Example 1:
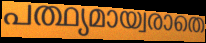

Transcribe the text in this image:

പത്ഥ്യമായ്വരാതെ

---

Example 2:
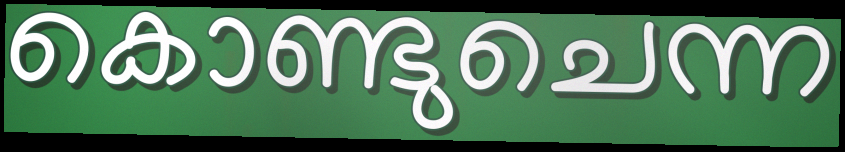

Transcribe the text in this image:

കൊണ്ടുചെന്ന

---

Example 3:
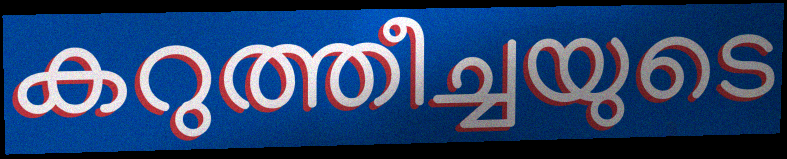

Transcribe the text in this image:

കറുത്തീച്ചയുടെ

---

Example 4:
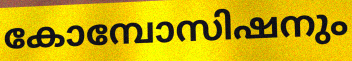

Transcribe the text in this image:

കോമ്പോസിഷനും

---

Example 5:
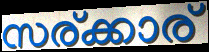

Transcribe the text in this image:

സര്ക്കാര്